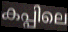
കപ്പിലെ